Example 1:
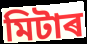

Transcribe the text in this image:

মিটাৰ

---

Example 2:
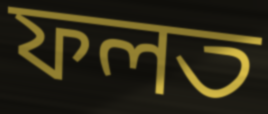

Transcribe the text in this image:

ফলত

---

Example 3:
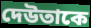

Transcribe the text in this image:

দেউতাকে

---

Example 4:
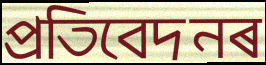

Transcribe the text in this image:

প্ৰতিবেদনৰ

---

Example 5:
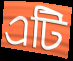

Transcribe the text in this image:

এটি